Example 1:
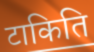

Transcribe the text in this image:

टाकिति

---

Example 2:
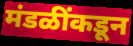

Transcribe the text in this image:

मंडळींकडून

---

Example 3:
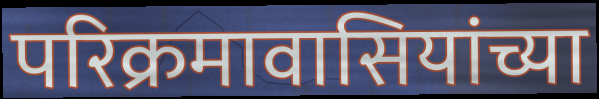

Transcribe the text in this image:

परिक्रमावासियांच्या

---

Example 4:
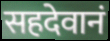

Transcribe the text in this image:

सहदेवानं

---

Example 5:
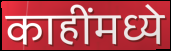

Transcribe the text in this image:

काहींमध्ये